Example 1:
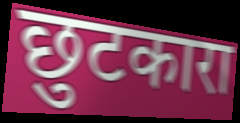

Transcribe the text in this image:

छुटकारा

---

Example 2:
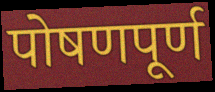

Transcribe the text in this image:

पोषणपूर्ण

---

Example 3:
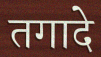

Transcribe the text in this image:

तगादे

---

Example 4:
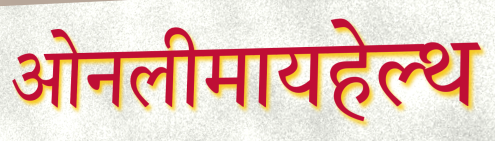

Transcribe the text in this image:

ओनलीमायहेल्थ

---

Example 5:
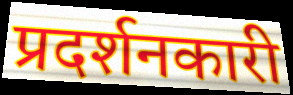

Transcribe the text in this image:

प्रदर्शनकारी